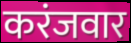
करंजवार